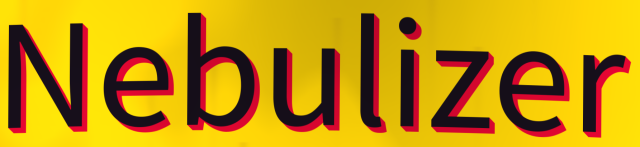
Nebulizer